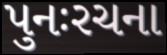
પુનઃરચના